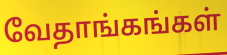
வேதாங்கங்கள்